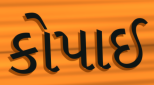
કોપાઈ